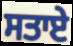
ਸਤਾਏ